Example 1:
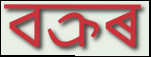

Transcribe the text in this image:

বক্ৰৰ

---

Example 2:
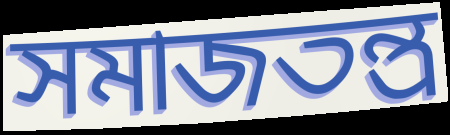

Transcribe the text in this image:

সমাজতন্ত্ৰ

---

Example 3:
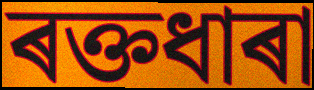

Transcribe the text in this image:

ৰক্তধাৰা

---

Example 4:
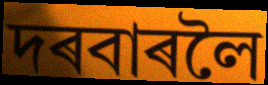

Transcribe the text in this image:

দৰবাৰলৈ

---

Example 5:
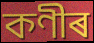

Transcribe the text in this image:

কণীৰ